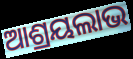
ଆଶ୍ରୟଲାଭ